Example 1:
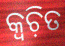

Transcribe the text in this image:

କ୍ୱଚ଼ିତ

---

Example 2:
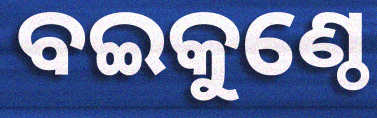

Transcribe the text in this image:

ବଇକୁଣ୍ଠେ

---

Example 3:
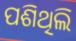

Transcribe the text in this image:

ପଶିଥିଲି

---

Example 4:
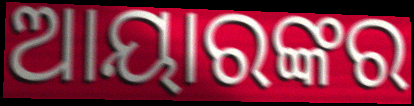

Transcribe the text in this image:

ଆୟାରଙ୍କର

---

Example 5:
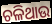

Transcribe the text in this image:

ଚଳିଥାଉ